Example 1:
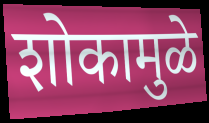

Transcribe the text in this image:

शोकामुळे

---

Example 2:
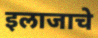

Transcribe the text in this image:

इलाजाचे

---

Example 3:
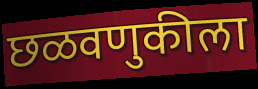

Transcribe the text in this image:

छळवणुकीला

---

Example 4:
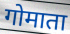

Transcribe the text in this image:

गोमाता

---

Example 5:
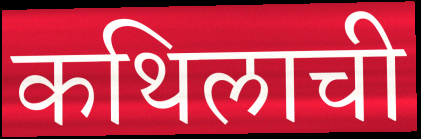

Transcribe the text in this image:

कथिलाची